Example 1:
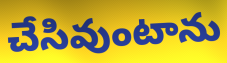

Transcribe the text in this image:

చేసివుంటాను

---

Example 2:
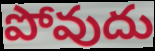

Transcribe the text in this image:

పోవుదు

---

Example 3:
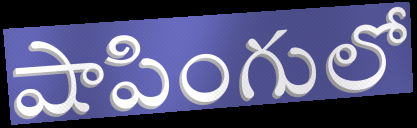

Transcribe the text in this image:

షాపింగులో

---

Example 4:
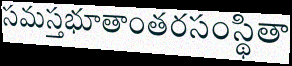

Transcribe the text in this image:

సమస్తభూతాంతరసంస్థితా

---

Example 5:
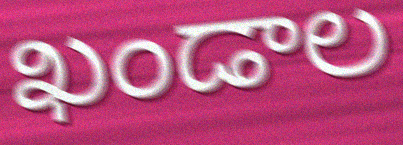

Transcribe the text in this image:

ఖండాల